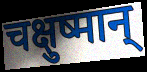
चक्षुष्मान्